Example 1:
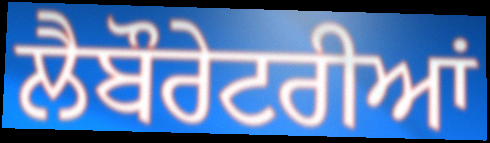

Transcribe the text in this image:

ਲੈਬੌਰੇਟਰੀਆਂ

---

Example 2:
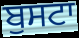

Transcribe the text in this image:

ਬੁਸਟਾ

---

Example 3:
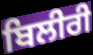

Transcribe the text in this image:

ਬਿਲੀਰੀ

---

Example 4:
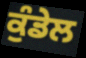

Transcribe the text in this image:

ਕੁੰਡੇਲ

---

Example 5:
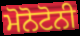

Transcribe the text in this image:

ਮੋਨੋਟੋਨੀ